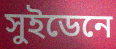
সুইডেনে